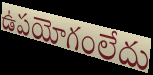
ఉపయోగంలేదు